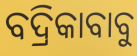
ବଦ୍ରିକାବାବୁ